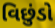
વિછુંડો